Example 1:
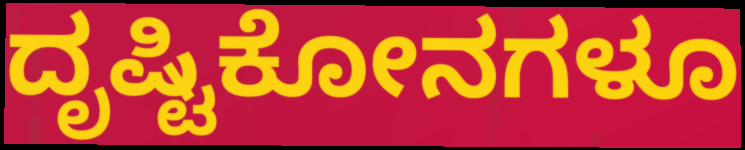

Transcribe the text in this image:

ದೃಷ್ಟಿಕೋನಗಳೂ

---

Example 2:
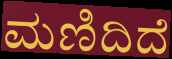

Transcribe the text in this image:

ಮಣಿದಿದೆ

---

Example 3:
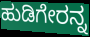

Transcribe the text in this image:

ಹುಡಿಗೇರನ್ನ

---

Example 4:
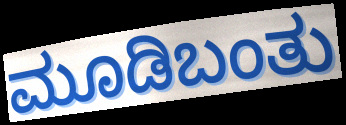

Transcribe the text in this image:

ಮೂಡಿಬಂತು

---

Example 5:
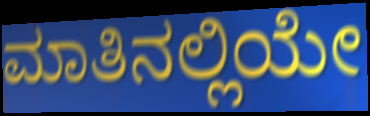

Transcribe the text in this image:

ಮಾತಿನಲ್ಲಿಯೇ